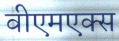
वीएमएक्स